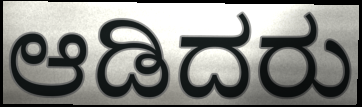
ಆಡಿದರು